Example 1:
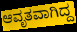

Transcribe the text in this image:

ಆವೃತವಾಗಿದ್ದ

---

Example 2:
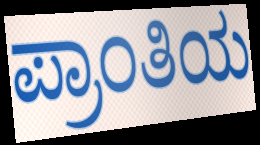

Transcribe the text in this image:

ಪ್ರಾಂತಿಯ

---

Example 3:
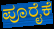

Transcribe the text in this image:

ಪೂರೈಕೆ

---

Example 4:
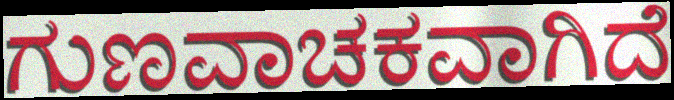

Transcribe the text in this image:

ಗುಣವಾಚಕವಾಗಿದೆ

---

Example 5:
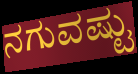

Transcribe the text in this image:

ನಗುವಷ್ಟು